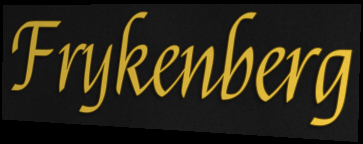
Frykenberg